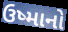
ઉષ્માનો